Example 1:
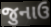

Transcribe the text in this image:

જુનાઉ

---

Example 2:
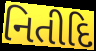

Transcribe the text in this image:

નિતીદિ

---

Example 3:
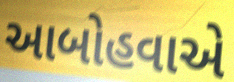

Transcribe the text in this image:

આબોહવાએ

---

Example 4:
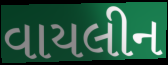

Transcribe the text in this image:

વાયલીન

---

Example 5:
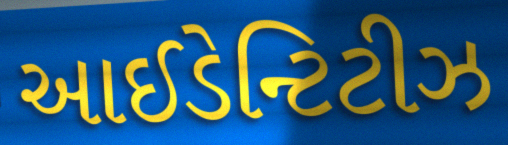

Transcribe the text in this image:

આઈડેન્ટિટીઝ